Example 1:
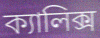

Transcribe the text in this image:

ক্যালিক্স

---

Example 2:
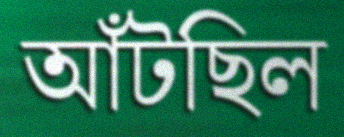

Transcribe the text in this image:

আঁটছিল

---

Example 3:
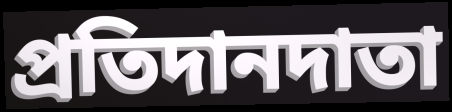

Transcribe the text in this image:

প্রতিদানদাতা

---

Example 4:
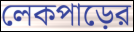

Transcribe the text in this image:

লেকপাড়ের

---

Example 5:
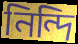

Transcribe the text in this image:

নিন্দি